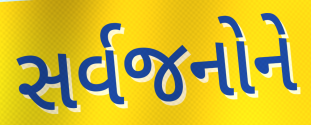
સર્વજનોને